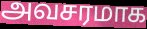
அவசரமாக